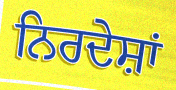
ਨਿਰਦੇਸ਼ਾਂ